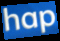
hap